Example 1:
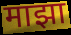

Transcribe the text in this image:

माझा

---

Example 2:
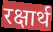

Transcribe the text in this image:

रक्षार्थ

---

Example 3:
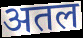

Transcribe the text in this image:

अतल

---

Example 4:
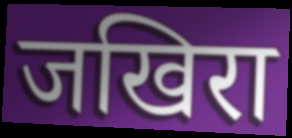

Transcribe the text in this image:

जखिरा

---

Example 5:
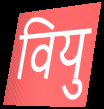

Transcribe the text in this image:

वियु